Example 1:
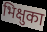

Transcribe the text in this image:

भिक्षुका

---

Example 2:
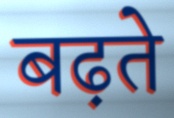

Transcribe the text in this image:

बढ़ते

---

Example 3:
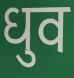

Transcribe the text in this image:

धुव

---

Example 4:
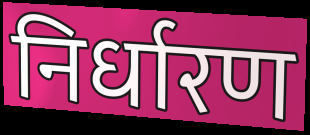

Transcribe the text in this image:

निर्धारण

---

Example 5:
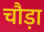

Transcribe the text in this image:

चौड़ा